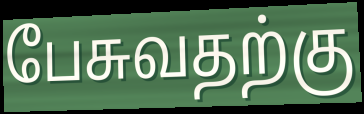
பேசுவதற்கு